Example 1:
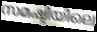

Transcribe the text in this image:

സമഷ്ടിയിലെ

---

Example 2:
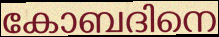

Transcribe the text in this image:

കോബദിനെ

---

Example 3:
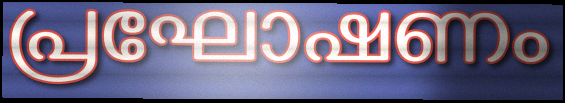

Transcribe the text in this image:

പ്രഘോഷണം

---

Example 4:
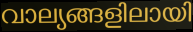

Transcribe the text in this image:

വാല്യങ്ങളിലായി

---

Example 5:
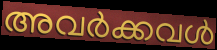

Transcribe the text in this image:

അവർക്കവൾ